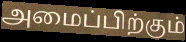
அமைப்பிற்கும்